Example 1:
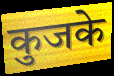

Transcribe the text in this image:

कुजके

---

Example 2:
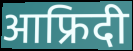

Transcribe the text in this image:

आफ्रिदी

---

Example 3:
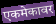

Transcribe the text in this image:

एकमेकावर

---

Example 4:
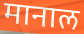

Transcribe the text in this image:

मानाल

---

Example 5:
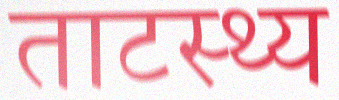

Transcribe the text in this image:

ताटस्थ्य